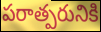
పరాత్పరునికి